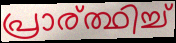
പ്രാര്ത്ഥിച്ച്